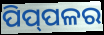
ପିପ୍‌ପଳର